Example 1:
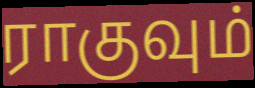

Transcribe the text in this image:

ராகுவும்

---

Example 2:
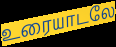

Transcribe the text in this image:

உரையாடலே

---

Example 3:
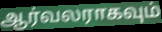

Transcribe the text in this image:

ஆர்வலராகவும்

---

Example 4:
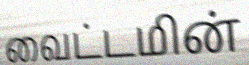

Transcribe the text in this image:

வைட்டமின்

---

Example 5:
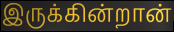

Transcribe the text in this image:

இருக்கின்றான்